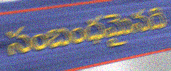
సంబంధమైనది